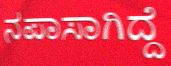
ನಪಾಸಾಗಿದ್ದೆ